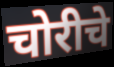
चोरीचे